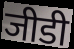
जीडी